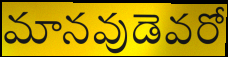
మానవుడెవరో